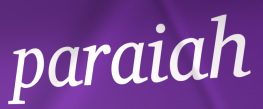
paraiah